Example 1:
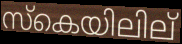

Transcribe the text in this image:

സ്കെയിലില്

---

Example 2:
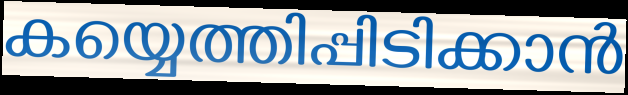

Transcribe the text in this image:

കയ്യെത്തിപ്പിടിക്കാൻ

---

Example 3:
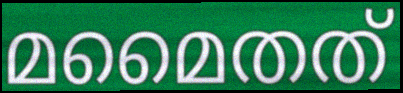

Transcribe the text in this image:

മമൈതത്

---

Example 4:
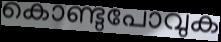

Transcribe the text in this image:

കൊണ്ടുപോവുക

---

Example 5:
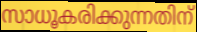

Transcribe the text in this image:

സാധൂകരിക്കുന്നതിന്